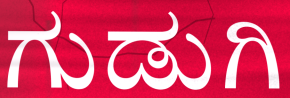
ಗುಡುಗಿ